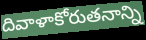
దివాళాకోరుతనాన్ని